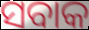
ସବାକ